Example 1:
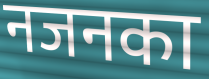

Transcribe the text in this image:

नजनका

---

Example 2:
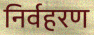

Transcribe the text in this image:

निर्वहरण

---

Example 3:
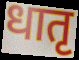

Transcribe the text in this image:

धातृ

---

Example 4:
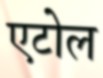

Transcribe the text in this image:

एटोल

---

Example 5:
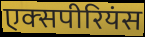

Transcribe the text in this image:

एक्‍सपीरियंस